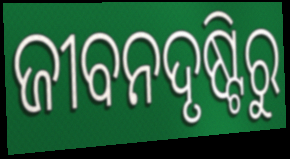
ଜୀବନଦୃଷ୍ଟିରୁ